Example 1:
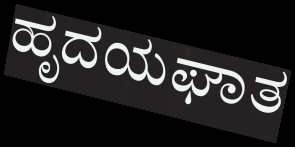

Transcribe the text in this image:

ಹೃದಯಘಾತ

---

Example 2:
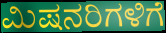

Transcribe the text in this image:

ಮಿಷನರಿಗಳಿಗೆ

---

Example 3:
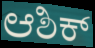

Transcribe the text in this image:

ಆಶಿಕ್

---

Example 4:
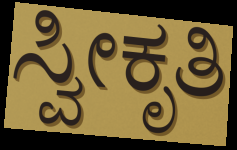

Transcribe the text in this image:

ಸ್ವೀಕೃತಿ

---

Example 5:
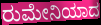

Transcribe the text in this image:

ರುಮೇನಿಯಾದ